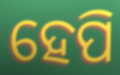
ହେପି